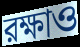
রক্ষাও